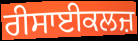
ਰੀਸਾਈਕਲਜ਼